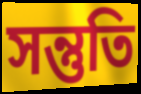
সন্তুতি